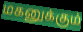
மகனுக்கும்